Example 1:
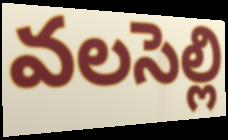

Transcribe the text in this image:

వలసెల్లి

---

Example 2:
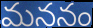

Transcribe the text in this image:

మననం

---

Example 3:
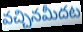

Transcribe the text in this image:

వచ్చినమీదట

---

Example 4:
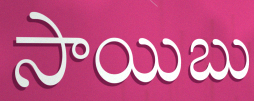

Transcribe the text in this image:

సాయిబు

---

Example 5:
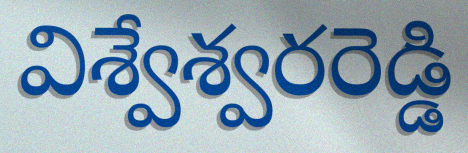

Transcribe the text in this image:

విశ్వేశ్వరరెడ్డి